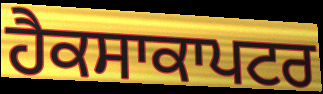
ਹੈਕਸਾਕਾਪਟਰ